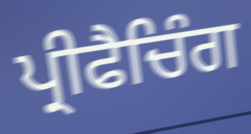
ਪ੍ਰੀਫੈਚਿੰਗ